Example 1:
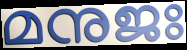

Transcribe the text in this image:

മനുജഃ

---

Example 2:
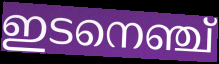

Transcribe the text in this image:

ഇടനെഞ്ച്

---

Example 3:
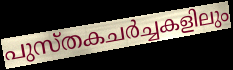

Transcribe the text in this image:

പുസ്തകചർച്ചകളിലും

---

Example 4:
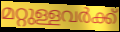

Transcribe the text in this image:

മറ്റുള്ളവർക്ക്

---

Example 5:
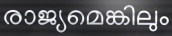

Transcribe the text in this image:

രാജ്യമെങ്കിലും